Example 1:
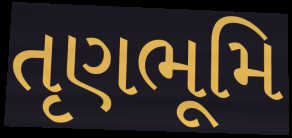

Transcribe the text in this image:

તૃણભૂમિ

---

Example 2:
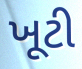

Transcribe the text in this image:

ખૂટી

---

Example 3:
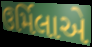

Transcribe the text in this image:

ઉર્મિલાએ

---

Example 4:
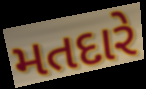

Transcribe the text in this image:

મતદારે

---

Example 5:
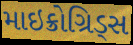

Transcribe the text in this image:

માઇક્રોગ્રિડ્સ